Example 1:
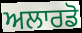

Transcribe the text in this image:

ਅਲਾਰਡੋ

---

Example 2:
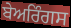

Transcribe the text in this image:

ਬੇਅਰਿੰਗਸ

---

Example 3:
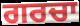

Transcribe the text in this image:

ਗਰਚਾ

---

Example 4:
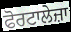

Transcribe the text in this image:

ਫੋਰਟਾਲੇਜ਼ਾ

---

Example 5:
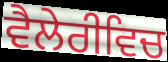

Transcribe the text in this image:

ਵੈਲੇਰੀਵਿਚ